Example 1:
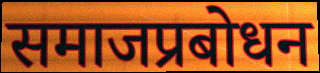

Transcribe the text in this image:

समाजप्रबोधन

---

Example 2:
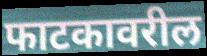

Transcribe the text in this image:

फाटकावरील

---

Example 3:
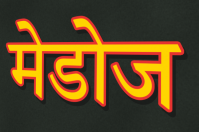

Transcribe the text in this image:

मेडोज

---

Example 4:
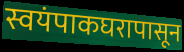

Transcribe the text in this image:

स्वयंपाकघरापासून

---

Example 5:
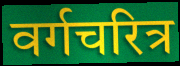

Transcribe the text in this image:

वर्गचरित्र